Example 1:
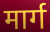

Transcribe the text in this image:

मार्ग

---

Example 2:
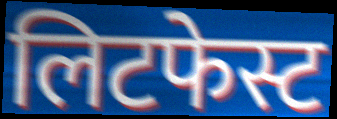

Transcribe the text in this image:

लिटफेस्ट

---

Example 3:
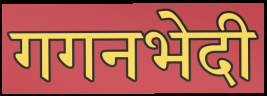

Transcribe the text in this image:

गगनभेदी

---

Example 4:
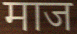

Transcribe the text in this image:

माज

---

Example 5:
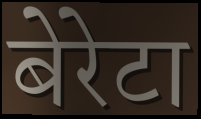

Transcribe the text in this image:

बेरेटा